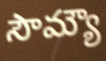
సౌమ్యౌ